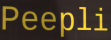
Peepli